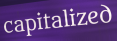
capitalized